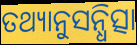
ତଥ୍ୟାନୁସନ୍ଧିତ୍ସା